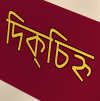
দিক্‌চিহ্ন